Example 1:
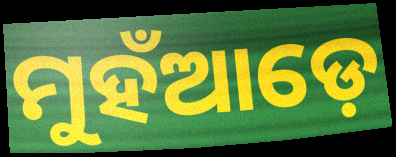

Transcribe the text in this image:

ମୁହଁଆଡ଼େ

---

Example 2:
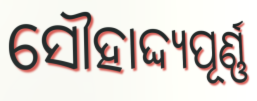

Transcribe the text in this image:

ସୌହାଦ୍ଦ୍ୟପୂର୍ଣ୍ଣ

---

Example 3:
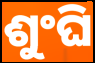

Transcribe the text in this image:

ଶୁଂଘି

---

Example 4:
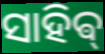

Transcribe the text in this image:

ସାହିଵ୍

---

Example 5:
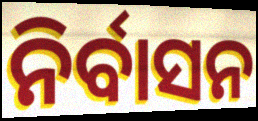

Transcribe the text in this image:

ନିର୍ବାସନ